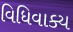
વિધિવાક્ય